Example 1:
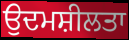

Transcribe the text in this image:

ਉਦਮਸ਼ੀਲਤਾ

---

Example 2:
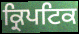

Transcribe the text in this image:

ਕ੍ਰਿਪਟਿਕ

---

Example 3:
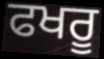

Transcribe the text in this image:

ਫਖਰੂ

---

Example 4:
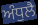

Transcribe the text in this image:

ਅੰਧੁਲੈ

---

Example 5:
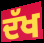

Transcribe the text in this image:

ਦੱਖ